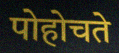
पोहोचते